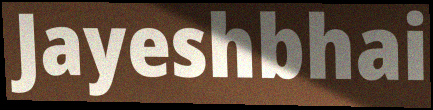
Jayeshbhai